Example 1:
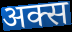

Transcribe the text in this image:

अक्स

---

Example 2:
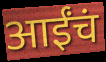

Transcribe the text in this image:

आईंचं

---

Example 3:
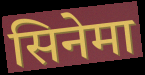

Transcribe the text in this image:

सिनेमा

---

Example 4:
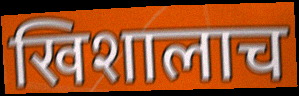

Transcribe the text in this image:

खिशालाच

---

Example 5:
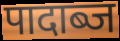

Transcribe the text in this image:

पादाब्ज